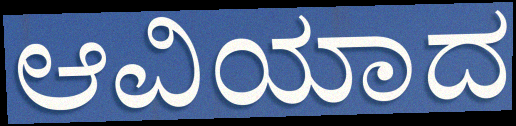
ಆವಿಯಾದ